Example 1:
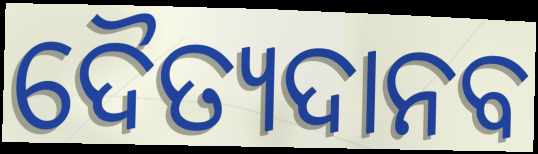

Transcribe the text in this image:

ଦୈତ୍ୟଦାନବ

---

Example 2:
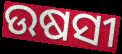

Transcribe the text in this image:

ଉଷସୀ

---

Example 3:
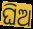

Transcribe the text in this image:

ଘିଅ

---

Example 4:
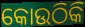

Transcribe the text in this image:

କୋଉଠିକି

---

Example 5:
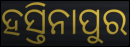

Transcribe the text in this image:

ହସ୍ତିନାପୁର